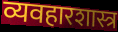
व्यवहारशास्त्र